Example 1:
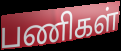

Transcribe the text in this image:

பணிகள்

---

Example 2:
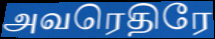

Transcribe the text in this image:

அவரெதிரே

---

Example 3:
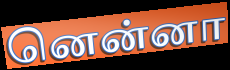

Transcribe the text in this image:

னென்னா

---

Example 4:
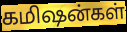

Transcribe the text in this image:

கமிஷன்கள்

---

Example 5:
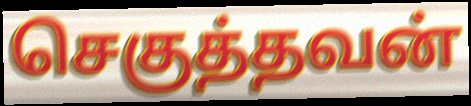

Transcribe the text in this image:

செகுத்தவன்